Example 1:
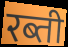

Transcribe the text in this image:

रब्ती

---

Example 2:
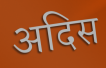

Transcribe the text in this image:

अदिस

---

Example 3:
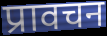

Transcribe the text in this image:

प्रावचन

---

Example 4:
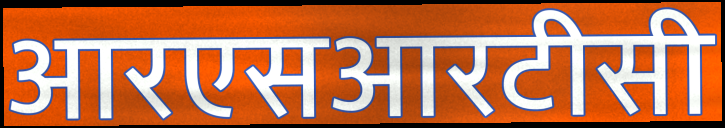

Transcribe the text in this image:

आरएसआरटीसी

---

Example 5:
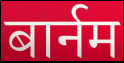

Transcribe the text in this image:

बार्नम